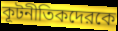
কূটনীতিকদেরকে